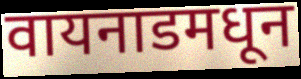
वायनाडमधून